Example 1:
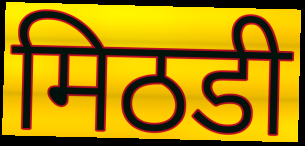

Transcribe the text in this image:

मिठडी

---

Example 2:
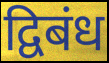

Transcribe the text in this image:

द्विबंध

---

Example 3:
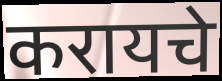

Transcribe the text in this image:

करायचे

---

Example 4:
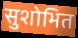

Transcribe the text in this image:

सुशोभित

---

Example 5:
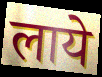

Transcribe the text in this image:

लाये